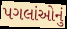
પગલાંઓનું